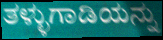
ತಳ್ಳುಗಾಡಿಯನ್ನು